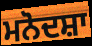
ਮਨੋਦਸ਼ਾ